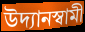
উদ্যানস্বামী